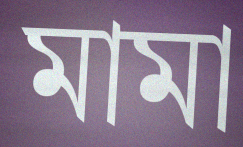
মামা